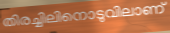
തിരച്ചിലിനൊടുവിലാണ്